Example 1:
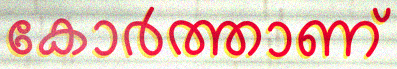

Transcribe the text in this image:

കോർത്താണ്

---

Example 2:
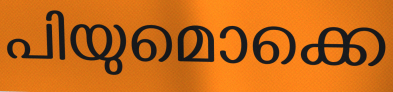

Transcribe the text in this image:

പിയുമൊക്കെ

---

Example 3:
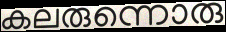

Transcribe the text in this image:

കലരുന്നൊരു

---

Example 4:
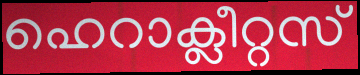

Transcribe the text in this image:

ഹെറാക്ലീറ്റസ്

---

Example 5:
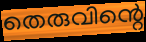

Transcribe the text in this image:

തെരുവിന്റെ